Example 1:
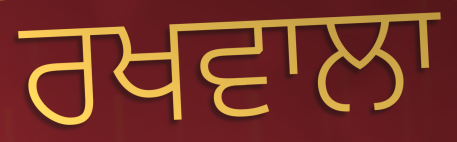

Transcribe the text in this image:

ਰਖਵਾਲਾ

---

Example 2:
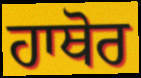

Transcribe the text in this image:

ਹਾਥੋਰ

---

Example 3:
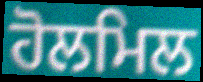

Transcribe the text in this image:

ਹੋਲਮਿਲ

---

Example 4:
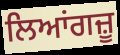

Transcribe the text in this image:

ਲਿਆਂਗਜ਼ੂ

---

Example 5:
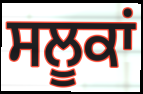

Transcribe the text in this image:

ਸਲੂਕਾਂ